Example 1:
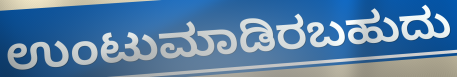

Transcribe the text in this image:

ಉಂಟುಮಾಡಿರಬಹುದು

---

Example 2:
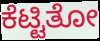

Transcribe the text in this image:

ಕೆಟ್ಟಿತೋ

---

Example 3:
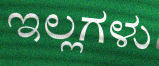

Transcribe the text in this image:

ಇಲ್ಲಗಳು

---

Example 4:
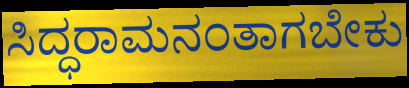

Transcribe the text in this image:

ಸಿದ್ಧರಾಮನಂತಾಗಬೇಕು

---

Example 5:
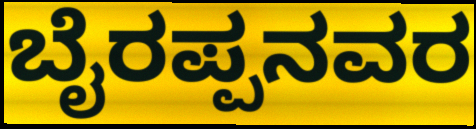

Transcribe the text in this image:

ಬೈರಪ್ಪನವರ